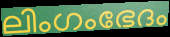
ലിംഗംഭേദം